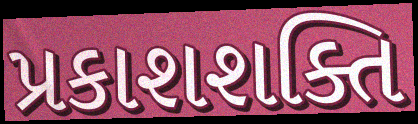
પ્રકાશશક્તિ